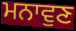
ਮਨਾਵੁਣ